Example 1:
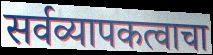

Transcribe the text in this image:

सर्वव्यापकत्वाचा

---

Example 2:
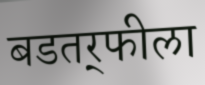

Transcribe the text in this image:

बडतर्फीला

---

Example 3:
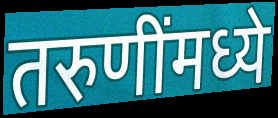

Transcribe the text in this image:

तरुणींमध्ये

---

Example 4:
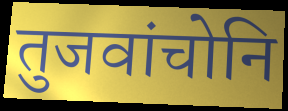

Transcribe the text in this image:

तुजवांचोनि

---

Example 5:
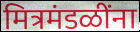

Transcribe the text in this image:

मित्रमंडळींना